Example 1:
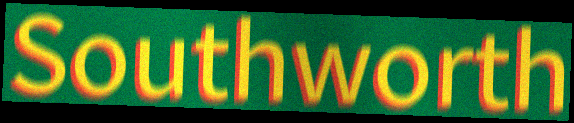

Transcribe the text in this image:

Southworth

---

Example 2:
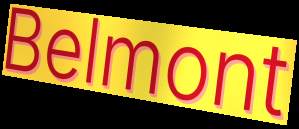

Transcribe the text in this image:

Belmont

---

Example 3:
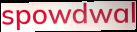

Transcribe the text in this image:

spowdwal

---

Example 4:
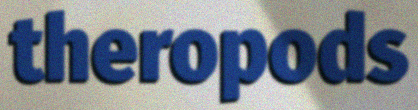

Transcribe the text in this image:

theropods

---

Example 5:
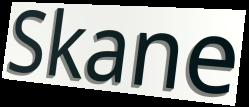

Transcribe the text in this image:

Skane